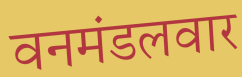
वनमंडलवार